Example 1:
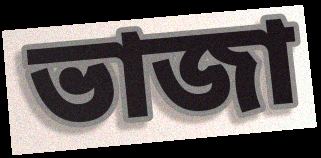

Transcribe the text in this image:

ভাজা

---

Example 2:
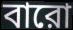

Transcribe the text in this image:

বারো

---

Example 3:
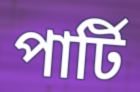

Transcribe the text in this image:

পার্টি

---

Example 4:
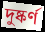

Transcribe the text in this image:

দুষ্কর্ণ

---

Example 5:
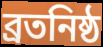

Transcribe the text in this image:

ব্রতনিষ্ঠ